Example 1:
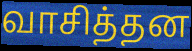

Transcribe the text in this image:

வாசித்தன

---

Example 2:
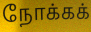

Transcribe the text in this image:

நோக்கக்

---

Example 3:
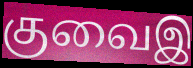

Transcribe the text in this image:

குவைஇ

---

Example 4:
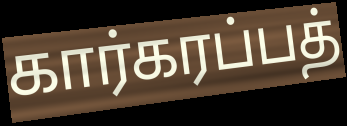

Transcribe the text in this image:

கார்கரப்பத்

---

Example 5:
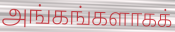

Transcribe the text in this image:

அங்கங்களாகக்